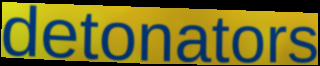
detonators